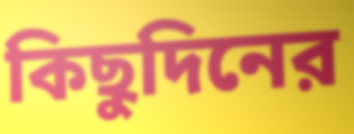
কিছুদিনের